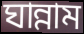
ঘান্নাম